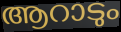
ആറാടും